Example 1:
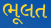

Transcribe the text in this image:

ભૂલત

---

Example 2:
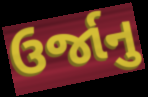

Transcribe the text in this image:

ઉર્જાનુ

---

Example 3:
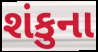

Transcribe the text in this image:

શંકુના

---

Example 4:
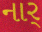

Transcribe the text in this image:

નાર્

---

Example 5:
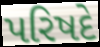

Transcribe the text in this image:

પરિષદે